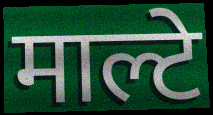
माल्टे